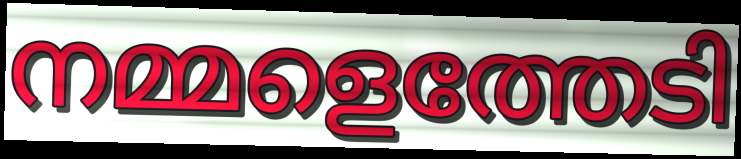
നമ്മളെത്തേടി